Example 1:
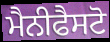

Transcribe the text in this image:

ਮੈਨੀਫੈਸਟੋ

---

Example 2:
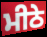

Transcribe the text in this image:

ਮੀਠੇ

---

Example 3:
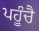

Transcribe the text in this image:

ਪਹੂੰਚੈ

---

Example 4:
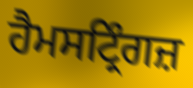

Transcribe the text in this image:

ਹੈਮਸਟ੍ਰਿੰਗਜ਼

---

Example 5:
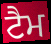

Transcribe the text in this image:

ਟੈਮ